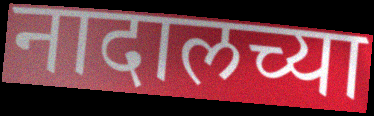
नादालच्या